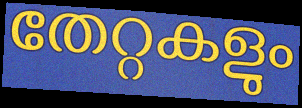
തേറ്റകളും